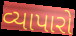
વ્યાપારો